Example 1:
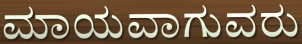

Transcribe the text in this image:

ಮಾಯವಾಗುವರು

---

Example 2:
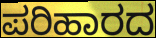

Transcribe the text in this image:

ಪರಿಹಾರದ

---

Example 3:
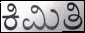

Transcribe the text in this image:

ಕಿಮಿತಿ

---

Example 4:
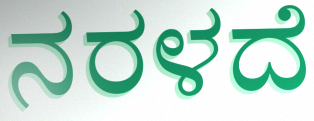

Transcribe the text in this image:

ನರಳದೆ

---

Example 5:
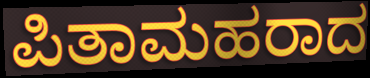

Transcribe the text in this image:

ಪಿತಾಮಹರಾದ